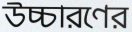
উচ্চারণের